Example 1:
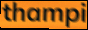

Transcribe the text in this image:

thampi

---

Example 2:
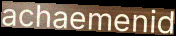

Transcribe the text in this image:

achaemenid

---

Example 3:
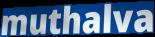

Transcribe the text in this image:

muthalva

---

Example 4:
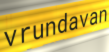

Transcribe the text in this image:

vrundavan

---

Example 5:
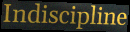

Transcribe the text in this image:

Indiscipline